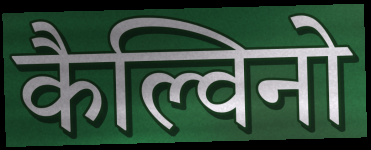
कैल्विनो